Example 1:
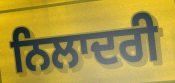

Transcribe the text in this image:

ਨਿਲਾਦਰੀ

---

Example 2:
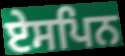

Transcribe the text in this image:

ਏਸਪਿਨ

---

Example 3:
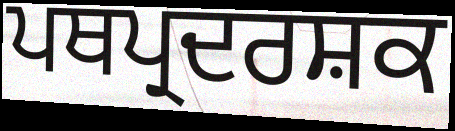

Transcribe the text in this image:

ਪਥਪ੍ਰਦਰਸ਼ਕ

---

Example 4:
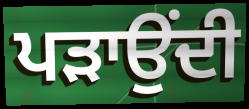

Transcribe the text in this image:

ਪੜਾਉਂਦੀ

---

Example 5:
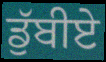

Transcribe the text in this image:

ਡੁੱਬੀਏ